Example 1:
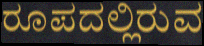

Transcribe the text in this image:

ರೂಪದಲ್ಲಿರುವ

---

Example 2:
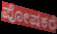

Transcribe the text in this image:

ಪೋಷಕರೆ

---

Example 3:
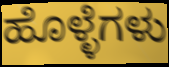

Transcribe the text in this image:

ಹೊಳ್ಳೆಗಳು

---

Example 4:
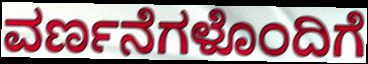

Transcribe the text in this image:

ವರ್ಣನೆಗಳೊಂದಿಗೆ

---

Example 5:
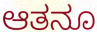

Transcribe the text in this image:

ಆತನೂ